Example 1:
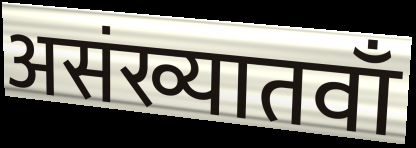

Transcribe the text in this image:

असंख्यातवाँ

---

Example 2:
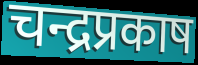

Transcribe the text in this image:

चन्द्रप्रकाष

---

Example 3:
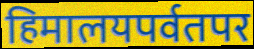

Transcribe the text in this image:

हिमालयपर्वतपर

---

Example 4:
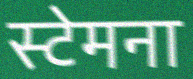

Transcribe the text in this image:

स्टेमना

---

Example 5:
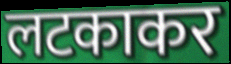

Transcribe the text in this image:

लटकाकर